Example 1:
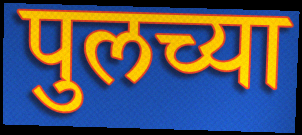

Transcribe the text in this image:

पुलच्या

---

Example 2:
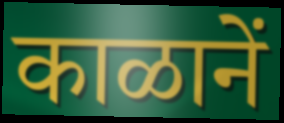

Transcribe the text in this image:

काळानें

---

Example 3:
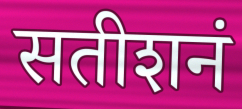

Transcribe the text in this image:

सतीशनं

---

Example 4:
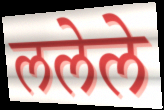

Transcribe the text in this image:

ललेले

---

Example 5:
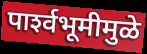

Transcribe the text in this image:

पार्श्‍वभूमीमुळे